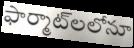
ఫార్మాట్‌లలోనూ